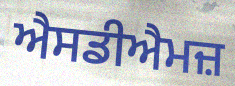
ਐਸਡੀਐਮਜ਼